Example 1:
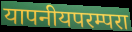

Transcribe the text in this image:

यापनीयपरम्परा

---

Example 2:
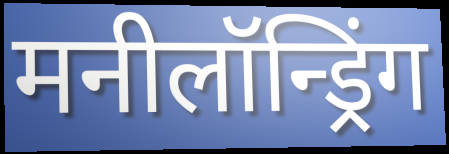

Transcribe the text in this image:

मनीलॉन्ड्रिंग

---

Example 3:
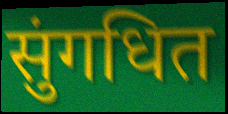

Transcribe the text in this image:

सुंगधित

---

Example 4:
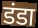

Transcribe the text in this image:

डंडा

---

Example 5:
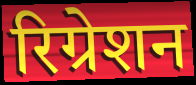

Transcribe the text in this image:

रिग्रेशन